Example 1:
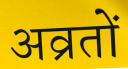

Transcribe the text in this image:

अव्रतों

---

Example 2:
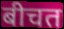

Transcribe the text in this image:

बीचत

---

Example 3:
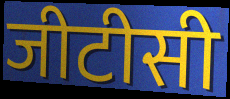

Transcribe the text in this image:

जीटीसी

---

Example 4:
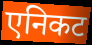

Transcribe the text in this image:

एनिकट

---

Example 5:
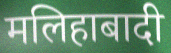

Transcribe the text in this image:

मलिहाबादी